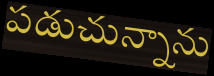
పడుచున్నాను